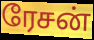
ரேசன்